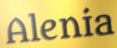
Alenia